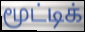
மூட்டிக்